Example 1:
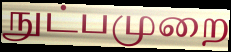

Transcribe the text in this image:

நுட்பமுறை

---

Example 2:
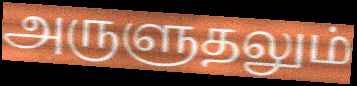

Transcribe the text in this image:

அருளுதலும்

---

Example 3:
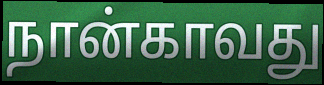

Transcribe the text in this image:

நான்காவது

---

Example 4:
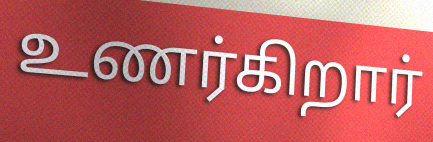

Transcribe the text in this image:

உணர்கிறார்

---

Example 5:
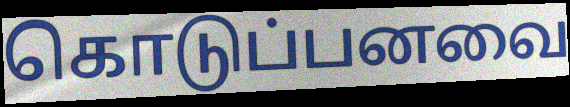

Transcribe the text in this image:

கொடுப்பனவை